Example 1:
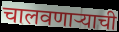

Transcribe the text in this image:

चालवणाऱ्याची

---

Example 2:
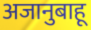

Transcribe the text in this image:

अजानुबाहू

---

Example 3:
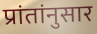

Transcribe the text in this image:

प्रांतांनुसार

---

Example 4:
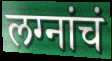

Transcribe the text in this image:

लग्नांचं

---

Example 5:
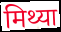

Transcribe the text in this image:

मिथ्या